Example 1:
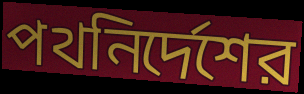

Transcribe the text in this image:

পথনির্দেশের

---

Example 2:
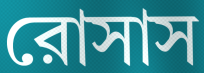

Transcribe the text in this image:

রোসাস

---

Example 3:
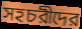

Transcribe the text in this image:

সহচরীদের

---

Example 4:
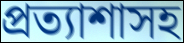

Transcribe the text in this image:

প্রত্যাশাসহ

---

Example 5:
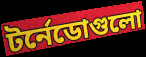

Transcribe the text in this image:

টর্নেডোগুলো